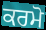
ਕਰਮੋ